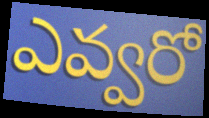
ఎవ్వరో